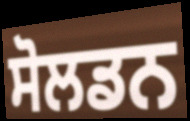
ਸੋਲਡਨ